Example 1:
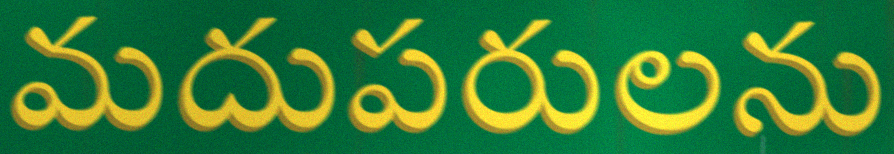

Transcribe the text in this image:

మదుపరులను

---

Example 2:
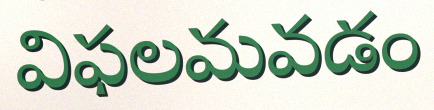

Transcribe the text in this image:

విఫలమవడం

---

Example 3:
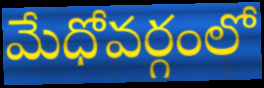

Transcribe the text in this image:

మేధోవర్గంలో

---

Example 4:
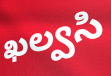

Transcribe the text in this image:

ఖల్వసి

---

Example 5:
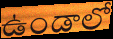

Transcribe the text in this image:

ఉండాలో